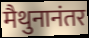
मैथुनानंतर